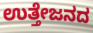
ಉತ್ತೇಜನದ